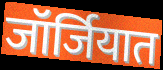
जॉर्जियात